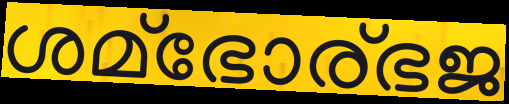
ശമ്ഭോര്ഭജ